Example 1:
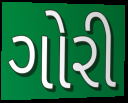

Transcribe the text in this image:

ગોરી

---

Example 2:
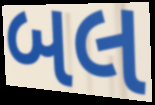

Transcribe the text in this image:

બલ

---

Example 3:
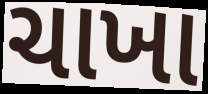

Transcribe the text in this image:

ચાખા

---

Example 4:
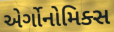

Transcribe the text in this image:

એર્ગોનોમિક્સ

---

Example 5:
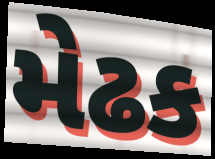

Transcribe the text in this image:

મેઢક